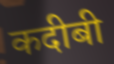
कदीबी